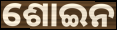
ଶୋଇନ